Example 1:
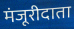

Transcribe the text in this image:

मंजूरीदाता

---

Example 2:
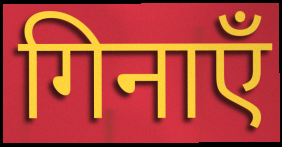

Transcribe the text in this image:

गिनाएँ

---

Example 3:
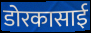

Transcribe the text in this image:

डोरकासाई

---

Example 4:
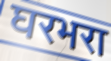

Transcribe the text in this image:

घरभरा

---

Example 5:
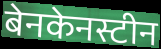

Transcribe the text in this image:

बेनकेनस्टीन